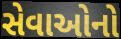
સેવાઓનો